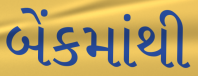
બેંકમાંથી